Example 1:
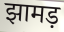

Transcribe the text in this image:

झामड़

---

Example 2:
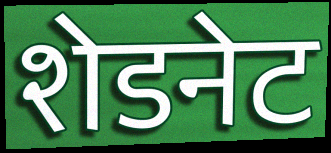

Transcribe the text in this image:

शेडनेट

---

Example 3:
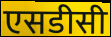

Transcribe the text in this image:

एसडीसी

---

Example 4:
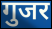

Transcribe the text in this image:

गुजर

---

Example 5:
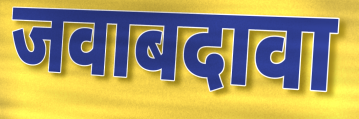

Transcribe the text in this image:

जवाबदावा